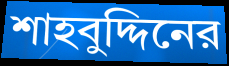
শাহবুদ্দিনের